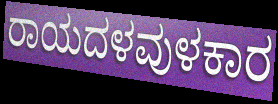
ರಾಯದಳವುಳಕಾರ